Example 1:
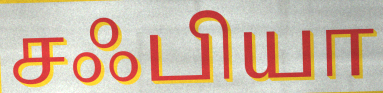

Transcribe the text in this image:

சஃபியா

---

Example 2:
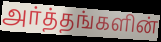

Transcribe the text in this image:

அர்த்தங்களின்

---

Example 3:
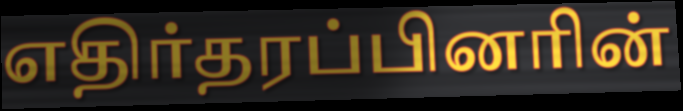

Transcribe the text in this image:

எதிர்தரப்பினரின்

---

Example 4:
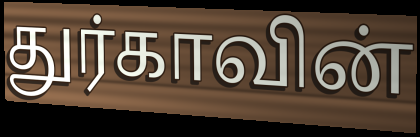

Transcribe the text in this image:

துர்காவின்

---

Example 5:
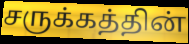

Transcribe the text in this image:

சருக்கத்தின்